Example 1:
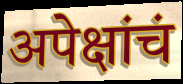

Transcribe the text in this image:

अपेक्षांचं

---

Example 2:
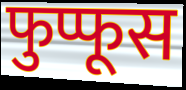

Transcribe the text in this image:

फुप्फूस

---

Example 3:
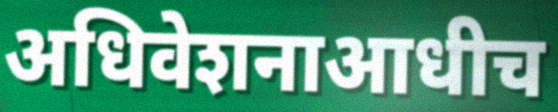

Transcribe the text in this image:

अधिवेशनाआधीच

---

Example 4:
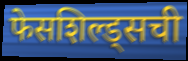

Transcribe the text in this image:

फेसशिल्ड्सची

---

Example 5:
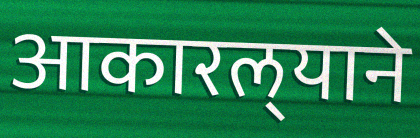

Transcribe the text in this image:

आकारल्याने